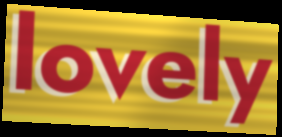
lovely